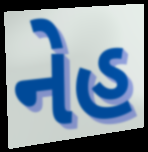
નેહ